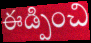
ఈడ్పించి